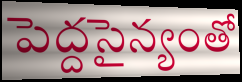
పెద్దసైన్యంతో